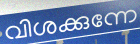
വിശക്കുന്നേ